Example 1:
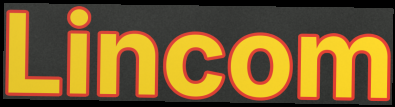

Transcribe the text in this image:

Lincom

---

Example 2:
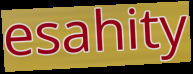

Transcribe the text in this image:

esahity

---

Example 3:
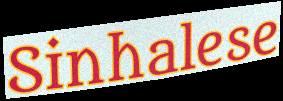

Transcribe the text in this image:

Sinhalese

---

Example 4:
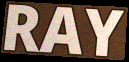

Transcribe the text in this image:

RAY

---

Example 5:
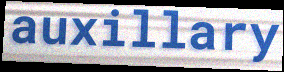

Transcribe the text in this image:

auxillary